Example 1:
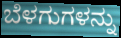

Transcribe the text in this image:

ಬೆಳಗುಗಳನ್ನು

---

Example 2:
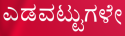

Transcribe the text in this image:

ಎಡವಟ್ಟುಗಳೇ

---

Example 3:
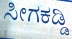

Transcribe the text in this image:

ಸೀಗಕಡ್ಡಿ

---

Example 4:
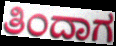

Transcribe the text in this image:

ತಿಂದಾಗ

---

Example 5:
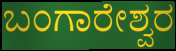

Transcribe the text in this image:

ಬಂಗಾರೇಶ್ವರ